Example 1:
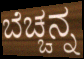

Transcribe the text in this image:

ಬೆಚ್ಚನ್ನ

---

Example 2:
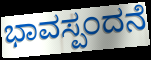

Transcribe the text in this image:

ಭಾವಸ್ಪಂದನೆ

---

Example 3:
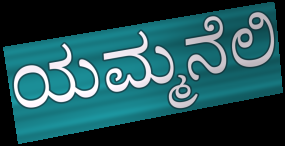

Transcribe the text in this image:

ಯಮ್ಮನೆಲಿ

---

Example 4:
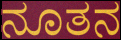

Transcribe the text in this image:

ನೂತನ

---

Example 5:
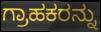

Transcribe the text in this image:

ಗ್ರಾಹಕರನ್ನು